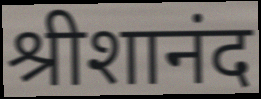
श्रीशानंद